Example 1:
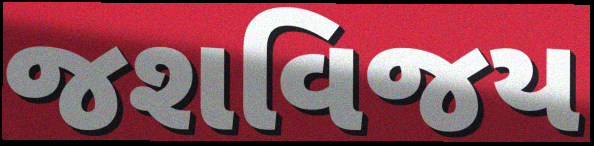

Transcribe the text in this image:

જશવિજય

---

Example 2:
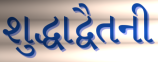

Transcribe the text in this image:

શુદ્ધાદ્વૈતની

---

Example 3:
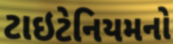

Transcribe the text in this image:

ટાઇટેનિયમનો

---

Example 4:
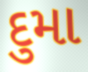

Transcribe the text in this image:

દુમા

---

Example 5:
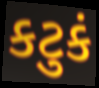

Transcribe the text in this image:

કટુકં